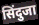
सिंदुजा